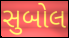
સુબોલ